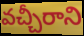
వచ్చీరాని